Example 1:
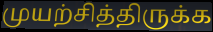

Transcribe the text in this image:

முயற்சித்திருக்க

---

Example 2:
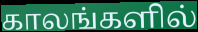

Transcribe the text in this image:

காலங்களில்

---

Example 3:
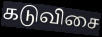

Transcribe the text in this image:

கடுவிசை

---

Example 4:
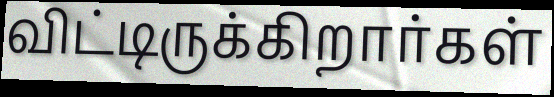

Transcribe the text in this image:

விட்டிருக்கிறார்கள்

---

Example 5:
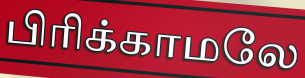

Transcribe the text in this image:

பிரிக்காமலே